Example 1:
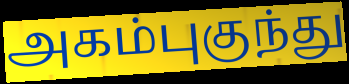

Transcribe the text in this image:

அகம்புகுந்து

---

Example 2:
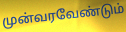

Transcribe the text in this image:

முன்வரவேண்டும்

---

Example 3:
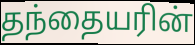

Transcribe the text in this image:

தந்தையரின்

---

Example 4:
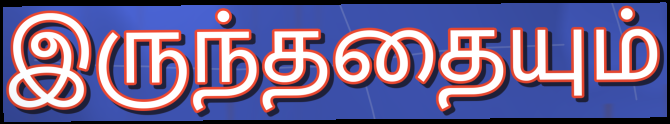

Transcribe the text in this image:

இருந்ததையும்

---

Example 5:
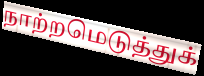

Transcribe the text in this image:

நாற்றமெடுத்துக்